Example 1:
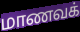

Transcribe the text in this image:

மாணவக்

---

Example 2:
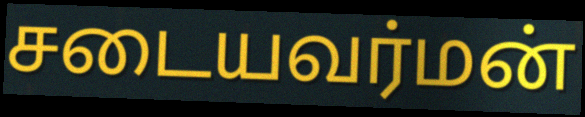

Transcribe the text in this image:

சடையவர்மன்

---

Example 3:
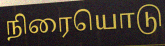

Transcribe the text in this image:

நிரையொடு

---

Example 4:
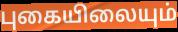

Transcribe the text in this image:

புகையிலையும்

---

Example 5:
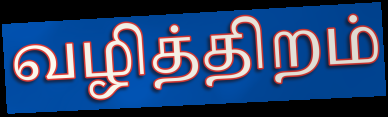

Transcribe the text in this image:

வழித்திறம்